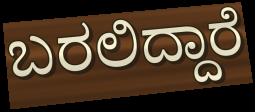
ಬರಲಿದ್ದಾರೆ